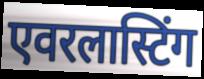
एवरलास्टिंग